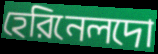
হেরিনেলদো